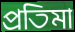
প্রতিমা